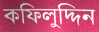
কফিলুদ্দিন